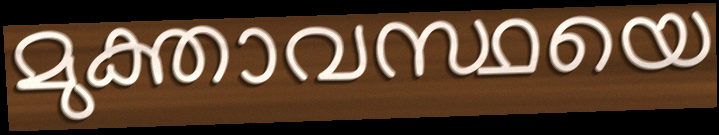
മുക്താവസ്ഥയെ